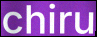
chiru